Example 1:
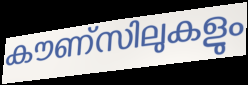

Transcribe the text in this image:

കൗണ്സിലുകളും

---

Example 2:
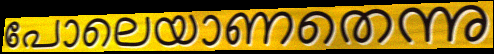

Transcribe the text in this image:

പോലെയാണതെന്നു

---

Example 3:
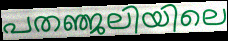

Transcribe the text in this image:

പതഞ്ജലിയിലെ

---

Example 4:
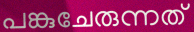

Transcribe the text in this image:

പങ്കുചേരുന്നത്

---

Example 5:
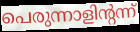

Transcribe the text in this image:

പെരുന്നാളിന്റന്ന്